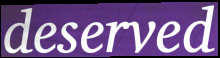
deserved